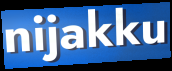
nijakku